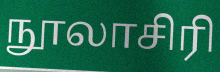
நூலாசிரி